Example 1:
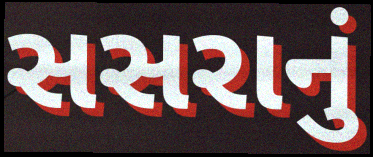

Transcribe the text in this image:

સસરાનું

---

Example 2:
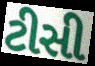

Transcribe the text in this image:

ટીસી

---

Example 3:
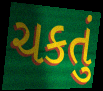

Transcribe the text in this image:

ચકતું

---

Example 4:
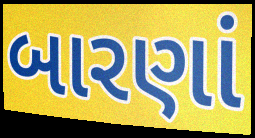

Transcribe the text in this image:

બારણાં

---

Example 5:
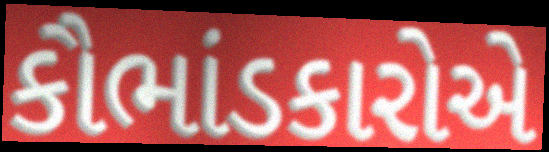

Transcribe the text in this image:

કૌભાંડકારોએ